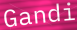
Gandi